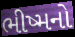
ભીષ્મનો